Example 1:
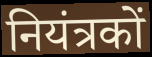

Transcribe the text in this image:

नियंत्रकों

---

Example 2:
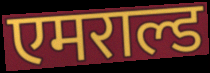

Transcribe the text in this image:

एमराल्‍ड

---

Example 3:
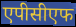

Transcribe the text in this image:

एपीसीएफ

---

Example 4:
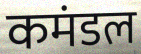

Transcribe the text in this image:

कमंडल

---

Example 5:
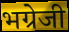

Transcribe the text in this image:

भग्रेजी